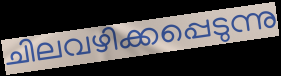
ചിലവഴിക്കപ്പെടുന്നു